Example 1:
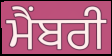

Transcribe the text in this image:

ਮੈਂਬਰੀ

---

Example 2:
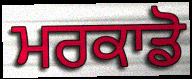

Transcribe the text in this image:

ਮਰਕਾਡੋ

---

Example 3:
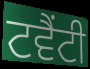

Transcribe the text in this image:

ਟਵੈਂਟੀ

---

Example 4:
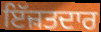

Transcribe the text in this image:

ਇੱਜ਼ਤਦਾਰ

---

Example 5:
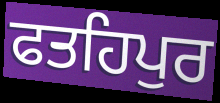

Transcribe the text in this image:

ਫਤਹਿਪੁਰ